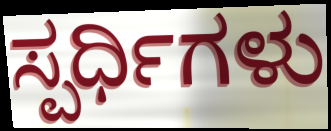
ಸ್ಪರ್ಧಿಗಳು